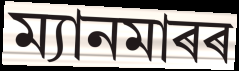
ম্যানমাৰৰ